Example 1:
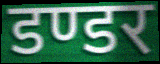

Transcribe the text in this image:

डण्डर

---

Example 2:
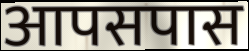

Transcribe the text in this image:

आपसपास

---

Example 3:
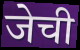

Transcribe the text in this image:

जेची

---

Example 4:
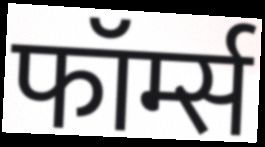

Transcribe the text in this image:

फॉर्म्स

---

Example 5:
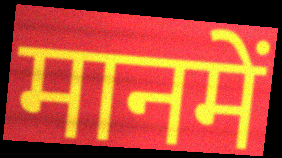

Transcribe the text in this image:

मानमें